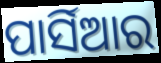
ପାର୍ସିଆର